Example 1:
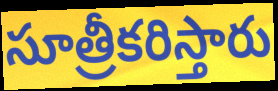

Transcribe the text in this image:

సూత్రీకరిస్తారు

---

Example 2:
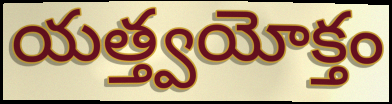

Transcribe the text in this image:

యత్త్వయోక్తం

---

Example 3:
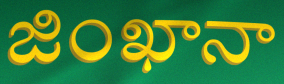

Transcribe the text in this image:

జింఖానా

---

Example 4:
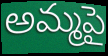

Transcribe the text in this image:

అమ్మపై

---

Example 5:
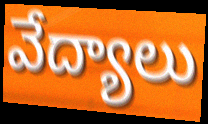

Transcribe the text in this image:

వేద్యాలు